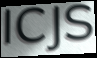
ICJS